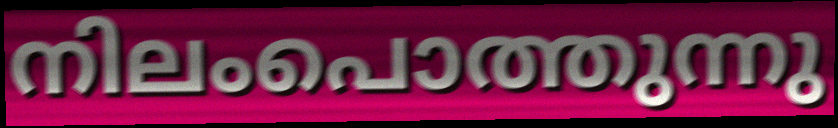
നിലംപൊത്തുന്നു